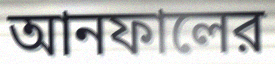
আনফালের